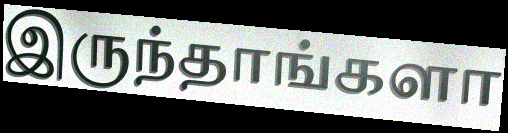
இருந்தாங்களா